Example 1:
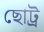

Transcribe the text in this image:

ছোট্র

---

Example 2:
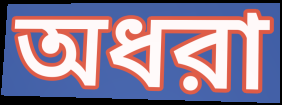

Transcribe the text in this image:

অধরা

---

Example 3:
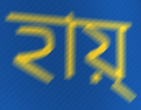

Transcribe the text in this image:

হায়্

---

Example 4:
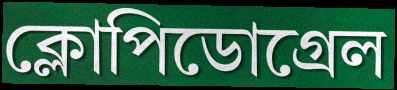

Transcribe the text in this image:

ক্লোপিডোগ্রেল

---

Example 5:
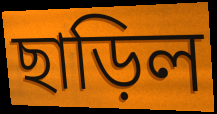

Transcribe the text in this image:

ছাড়িল